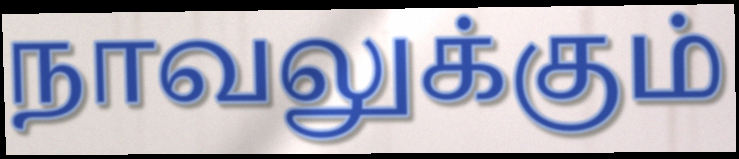
நாவலுக்கும்